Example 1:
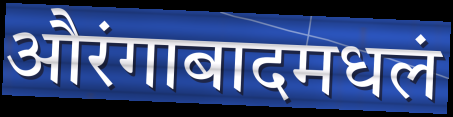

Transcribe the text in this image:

औरंगाबादमधलं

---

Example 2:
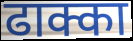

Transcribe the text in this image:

ढाक्का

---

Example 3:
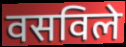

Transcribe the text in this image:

वसविले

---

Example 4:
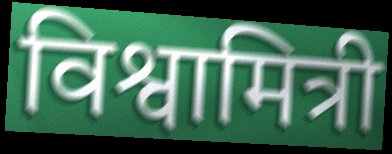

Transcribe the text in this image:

विश्वामित्री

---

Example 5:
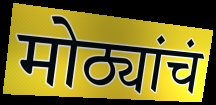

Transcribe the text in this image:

मोठ्यांचं